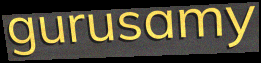
gurusamy